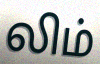
லிம்